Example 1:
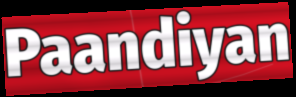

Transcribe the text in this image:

Paandiyan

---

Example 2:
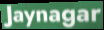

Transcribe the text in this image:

Jaynagar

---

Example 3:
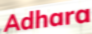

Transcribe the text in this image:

Adhara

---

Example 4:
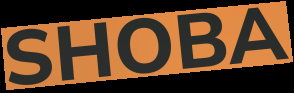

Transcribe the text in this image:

SHOBA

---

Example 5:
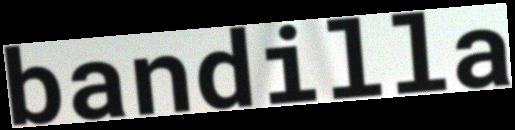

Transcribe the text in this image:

bandilla